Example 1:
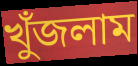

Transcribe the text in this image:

খুঁজলাম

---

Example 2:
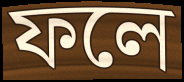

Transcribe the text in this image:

ফলে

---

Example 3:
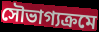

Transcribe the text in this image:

সৌভাগ্যক্রমে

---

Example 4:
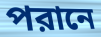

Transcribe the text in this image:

পরানে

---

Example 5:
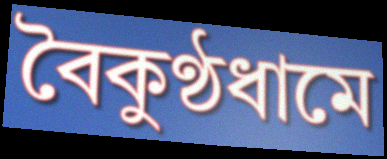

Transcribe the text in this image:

বৈকুণ্ঠধামে